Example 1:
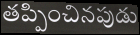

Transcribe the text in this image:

తప్పించినపుడు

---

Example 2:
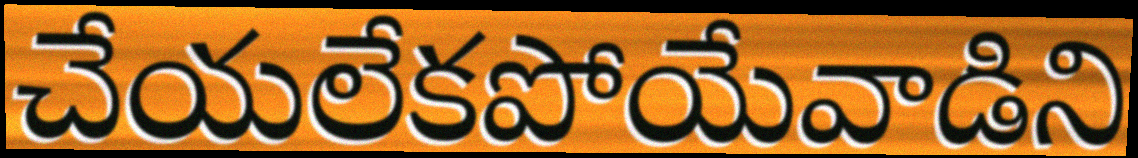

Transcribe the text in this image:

చేయలేకపోయేవాడిని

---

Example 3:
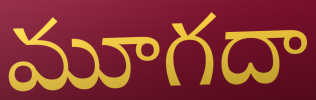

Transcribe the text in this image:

మూగదా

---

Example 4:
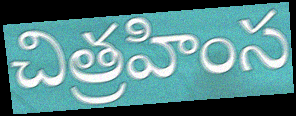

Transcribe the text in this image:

చిత్రహింస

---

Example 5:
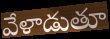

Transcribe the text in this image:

వేళాడుతూ